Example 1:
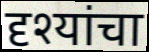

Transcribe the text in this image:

दृश्यांचा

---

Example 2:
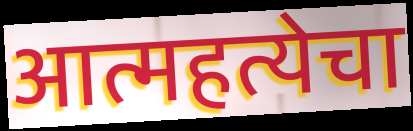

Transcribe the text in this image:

आत्महत्येचा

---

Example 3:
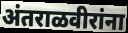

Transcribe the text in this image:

अंतराळवीरांना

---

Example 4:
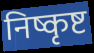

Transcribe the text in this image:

निष्कृष्ट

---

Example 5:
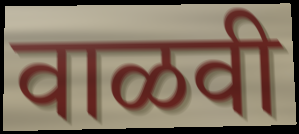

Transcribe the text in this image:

वाळवी